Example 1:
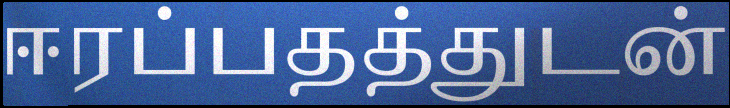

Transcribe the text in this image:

ஈரப்பதத்துடன்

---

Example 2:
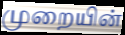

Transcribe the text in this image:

முறையின்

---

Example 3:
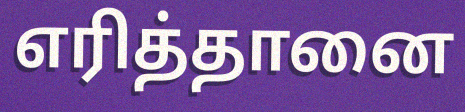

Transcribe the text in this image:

எரித்தானை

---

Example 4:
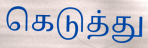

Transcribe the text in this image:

கெடுத்து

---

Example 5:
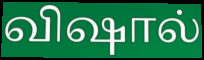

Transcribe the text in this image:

விஷால்